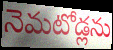
నెమటోడ్లను